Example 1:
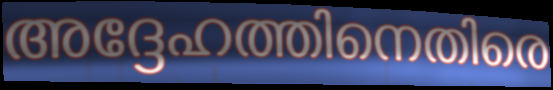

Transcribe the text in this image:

അദ്ദേഹത്തിനെതിരെ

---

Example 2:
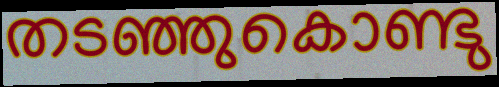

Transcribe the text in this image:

തടഞ്ഞുകൊണ്ടു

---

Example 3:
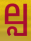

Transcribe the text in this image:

ല്പ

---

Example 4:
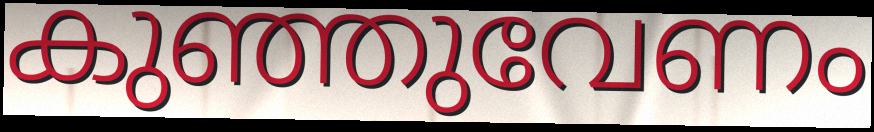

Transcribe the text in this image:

കുഞ്ഞുവേണം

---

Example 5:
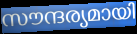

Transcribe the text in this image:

സൗന്ദര്യമായി